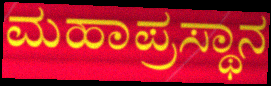
ಮಹಾಪ್ರಸ್ಥಾನ